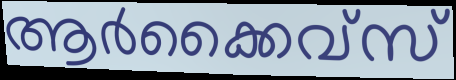
ആർക്കൈവ്സ്